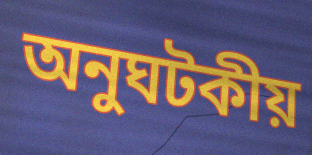
অনুঘটকীয়